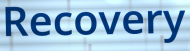
Recovery